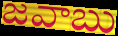
జవాబు